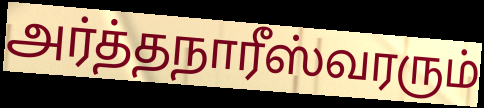
அர்த்தநாரீஸ்வரரும்